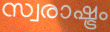
സ്വരാഷ്ട്രം